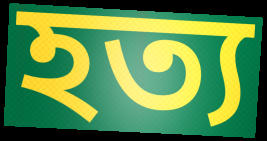
হত্য